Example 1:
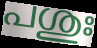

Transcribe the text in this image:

പശുഃ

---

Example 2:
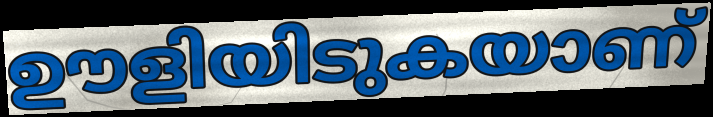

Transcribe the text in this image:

ഊളിയിടുകയാണ്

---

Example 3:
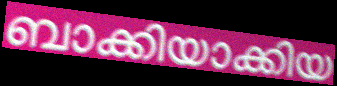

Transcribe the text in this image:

ബാക്കിയാക്കിയ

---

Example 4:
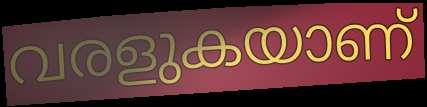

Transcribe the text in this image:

വരളുകയാണ്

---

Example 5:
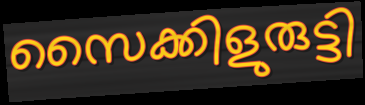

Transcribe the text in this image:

സൈക്കിളുരുട്ടി